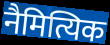
नैमित्यिक